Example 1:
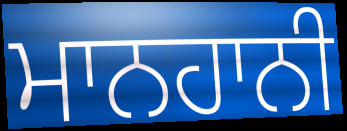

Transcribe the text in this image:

ਮਾਨਹਾਨੀ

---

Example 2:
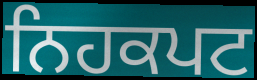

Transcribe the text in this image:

ਨਿਹਕਪਟ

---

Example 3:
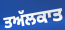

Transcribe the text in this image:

ਤਅੱਲਕਾਤ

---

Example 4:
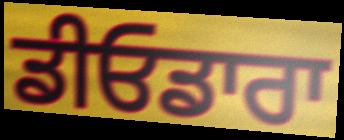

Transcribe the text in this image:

ਡੀਓਡਾਰਾ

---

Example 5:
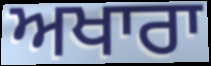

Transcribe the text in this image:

ਅਖਾਰਾ